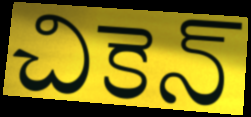
చికెన్